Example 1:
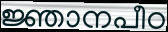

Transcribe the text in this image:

ജ്ഞാനപീഠ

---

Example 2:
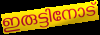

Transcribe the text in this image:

ഇരുട്ടിനോട്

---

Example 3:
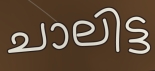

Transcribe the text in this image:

ചാലിട്ട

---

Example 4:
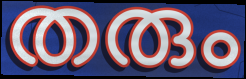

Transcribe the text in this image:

തരും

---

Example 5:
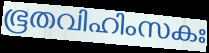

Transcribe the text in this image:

ഭൂതവിഹിംസകഃ